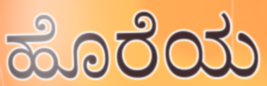
ಹೊರೆಯ